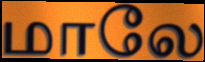
மாலே